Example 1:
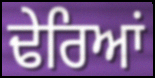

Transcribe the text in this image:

ਢੇਰਿਆਂ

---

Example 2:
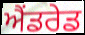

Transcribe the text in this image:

ਐਂਡਰੇਡ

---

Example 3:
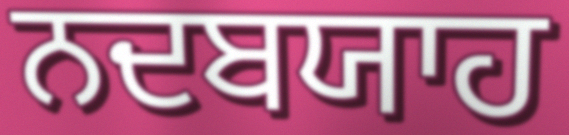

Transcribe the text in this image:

ਨਦਬਯਾਹ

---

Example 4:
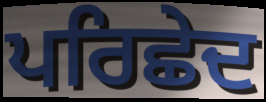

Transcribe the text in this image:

ਪਰਿਛੇਦ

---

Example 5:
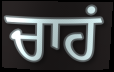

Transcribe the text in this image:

ਚਾਹਂ